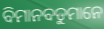
ବିମାନବଡୁମାନେ